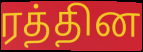
ரத்தின